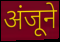
अंजूने